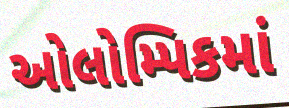
ઓલોમ્પિકમાં